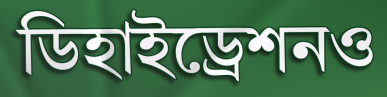
ডিহাইড্রেশনও